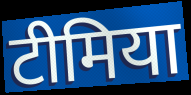
टीमिया